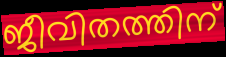
ജീവിതത്തിന്